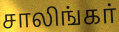
சாலிங்கர்